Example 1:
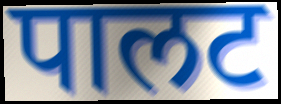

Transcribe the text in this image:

पालट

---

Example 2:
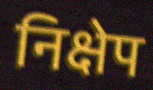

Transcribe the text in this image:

निक्षेप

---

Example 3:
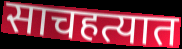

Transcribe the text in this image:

साचहत्यात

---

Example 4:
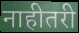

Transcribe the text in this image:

नाहीतरी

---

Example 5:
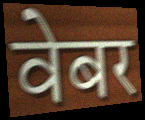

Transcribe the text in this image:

वेबर